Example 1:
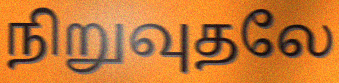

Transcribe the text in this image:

நிறுவுதலே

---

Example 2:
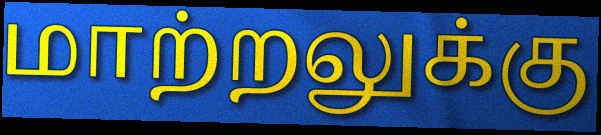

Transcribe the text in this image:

மாற்றலுக்கு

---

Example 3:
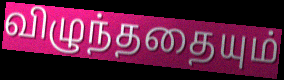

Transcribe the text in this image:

விழுந்ததையும்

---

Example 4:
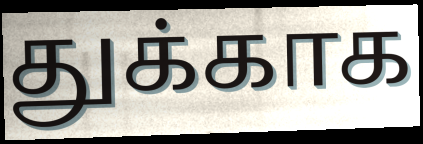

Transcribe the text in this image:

துக்காக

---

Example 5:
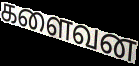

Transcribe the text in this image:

களைவன